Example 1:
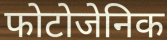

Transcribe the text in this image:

फोटोजेनिक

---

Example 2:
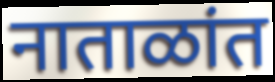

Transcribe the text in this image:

नाताळांत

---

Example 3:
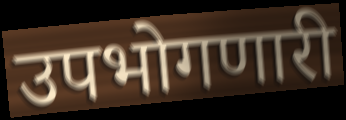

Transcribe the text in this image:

उपभोगणारी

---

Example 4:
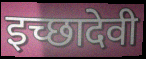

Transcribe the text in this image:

इच्छादेवी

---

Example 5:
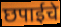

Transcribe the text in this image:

छपाईचे